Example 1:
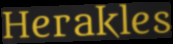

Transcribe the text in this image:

Herakles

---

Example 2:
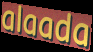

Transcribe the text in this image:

alaada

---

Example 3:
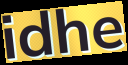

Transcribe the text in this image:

idhe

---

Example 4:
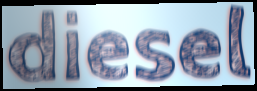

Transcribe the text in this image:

diesel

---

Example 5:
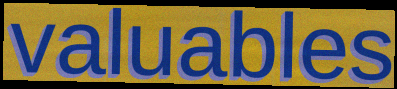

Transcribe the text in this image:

valuables